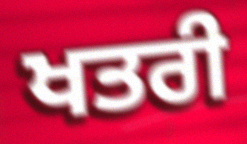
ਖਤਰੀ